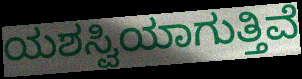
ಯಶಸ್ವಿಯಾಗುತ್ತಿವೆ